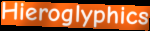
Hieroglyphics